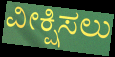
ವೀಕ್ಷಿಸಲು